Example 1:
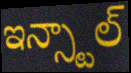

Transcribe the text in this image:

ఇన్స్టాల్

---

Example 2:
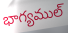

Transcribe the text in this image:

భాగ్యముల్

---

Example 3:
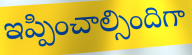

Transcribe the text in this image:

ఇప్పించాల్సిందిగా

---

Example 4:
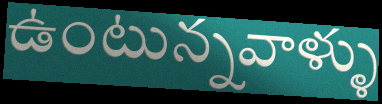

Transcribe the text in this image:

ఉంటున్నవాళ్ళు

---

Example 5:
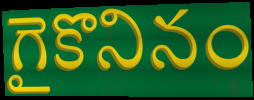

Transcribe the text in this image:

గైకొనినం